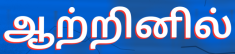
ஆற்றினில்